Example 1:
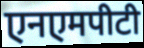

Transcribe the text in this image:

एनएमपीटी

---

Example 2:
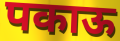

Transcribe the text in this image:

पकाऊ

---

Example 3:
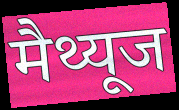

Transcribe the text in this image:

मैथ्यूज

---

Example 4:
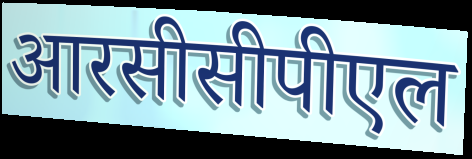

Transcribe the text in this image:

आरसीसीपीएल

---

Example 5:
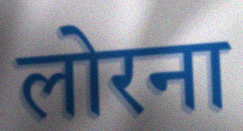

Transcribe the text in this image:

लोरना